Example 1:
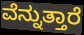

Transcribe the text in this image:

ವೆನ್ನುತ್ತಾರೆ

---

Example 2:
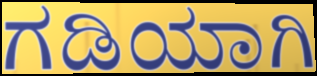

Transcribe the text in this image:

ಗಡಿಯಾಗಿ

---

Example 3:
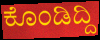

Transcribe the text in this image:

ಕೊಂಡಿದ್ದಿ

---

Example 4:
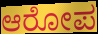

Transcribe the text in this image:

ಆರೋಪ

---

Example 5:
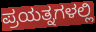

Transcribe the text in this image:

ಪ್ರಯತ್ನಗಳಲ್ಲಿ